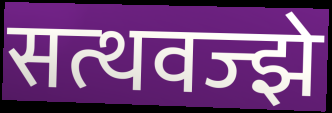
सत्थवज्झे